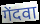
गेंदवा